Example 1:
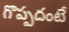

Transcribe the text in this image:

గొప్పదంటే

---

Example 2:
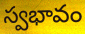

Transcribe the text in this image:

స్వభావం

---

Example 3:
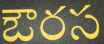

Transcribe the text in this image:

ఔరస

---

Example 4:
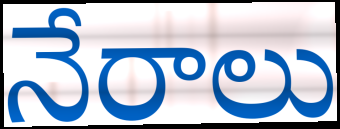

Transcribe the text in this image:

నేరాలు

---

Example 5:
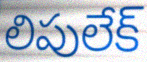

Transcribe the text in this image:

లిపులేక్